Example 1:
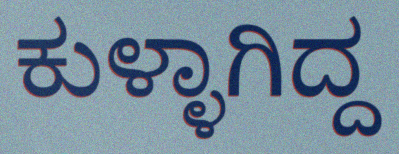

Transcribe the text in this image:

ಕುಳ್ಳಾಗಿದ್ದ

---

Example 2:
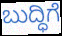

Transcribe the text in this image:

ಬುದ್ಧಿಗೆ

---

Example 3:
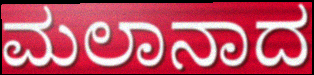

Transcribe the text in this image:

ಮಲಾನಾದ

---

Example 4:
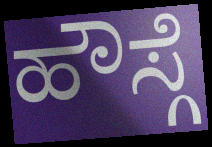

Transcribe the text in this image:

ಹೌಸ್ಗೆ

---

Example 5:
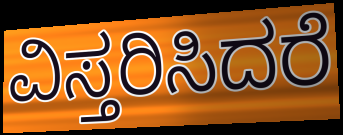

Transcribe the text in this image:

ವಿಸ್ತರಿಸಿದರೆ